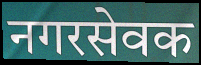
नगरसेवक